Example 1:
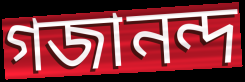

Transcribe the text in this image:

গজানন্দ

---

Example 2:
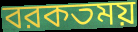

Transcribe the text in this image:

বরকতময়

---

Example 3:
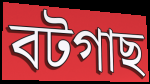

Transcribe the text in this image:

বটগাছ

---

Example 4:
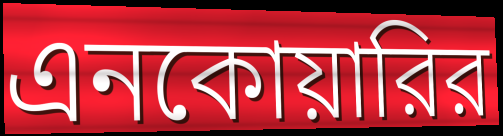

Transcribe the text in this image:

এনকোয়ারির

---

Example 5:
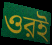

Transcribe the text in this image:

ওরই